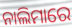
ନାଲିମାରେ